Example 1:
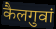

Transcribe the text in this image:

कैलगुवां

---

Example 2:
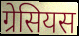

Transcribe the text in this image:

ग्रेसियस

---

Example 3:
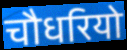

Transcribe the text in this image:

चौधरियो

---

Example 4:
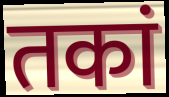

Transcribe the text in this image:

तकां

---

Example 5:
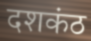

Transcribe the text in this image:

दशकंठ